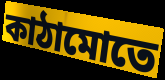
কাঠামোতে